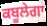
ਕਬੂਲੇਗਾ